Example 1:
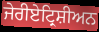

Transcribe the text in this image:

ਜੇਰੀਏਟ੍ਰਿਸ਼ੀਅਨ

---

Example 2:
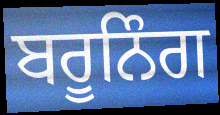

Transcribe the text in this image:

ਬਰੂਨਿੰਗ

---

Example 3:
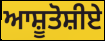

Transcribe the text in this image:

ਆਸ਼ੂਤੋਸ਼ੀਏ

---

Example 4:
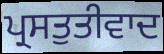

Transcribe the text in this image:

ਪ੍ਰਸਤੁਤੀਵਾਦ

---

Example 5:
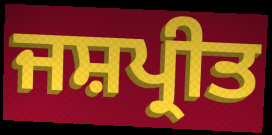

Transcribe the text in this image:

ਜਸ਼ਪ੍ਰੀਤ